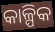
କାଳ୍ପିକ